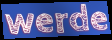
werde